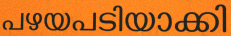
പഴയപടിയാക്കി